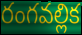
రంగవల్లిక